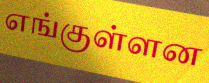
எங்குள்ளன